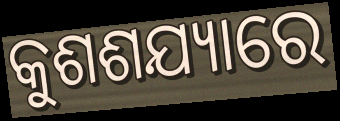
କୁଶଶଯ୍ୟାରେ